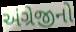
અંગ્રેજીનો